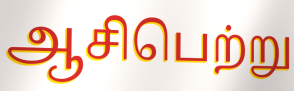
ஆசிபெற்று